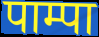
पाम्पा